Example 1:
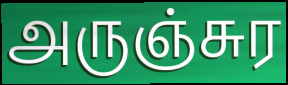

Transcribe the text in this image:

அருஞ்சுர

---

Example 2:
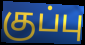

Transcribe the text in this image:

குப்பு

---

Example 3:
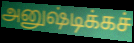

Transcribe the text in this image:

அனுஷ்டிக்கச்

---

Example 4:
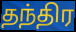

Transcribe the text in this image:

தந்திர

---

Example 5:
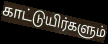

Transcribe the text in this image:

காட்டுயிர்களும்